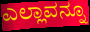
ಎಲ್ಲಾವನ್ನೂ